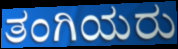
ತಂಗಿಯರು